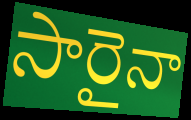
సారైనా